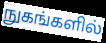
நுகங்களில்